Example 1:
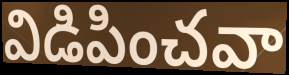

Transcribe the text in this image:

విడిపించవా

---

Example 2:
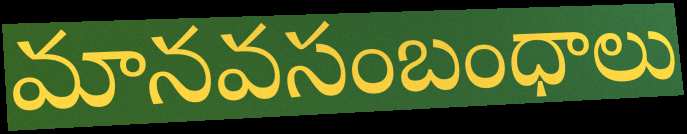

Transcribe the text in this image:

మానవసంబంధాలు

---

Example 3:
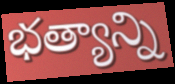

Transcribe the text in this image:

భత్యాన్ని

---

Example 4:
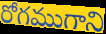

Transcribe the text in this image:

రోగముగాని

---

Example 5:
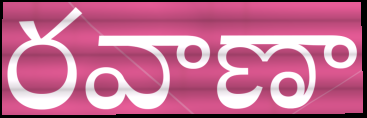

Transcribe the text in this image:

రవాణా